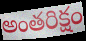
అంతరిక్షం